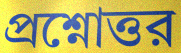
প্রশ্নোত্তর